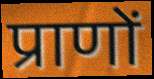
प्राणों